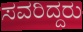
ಸವರಿದ್ದರು